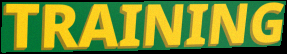
TRAINING